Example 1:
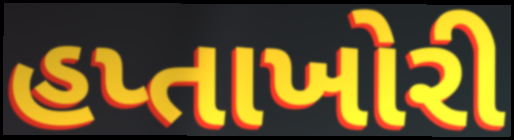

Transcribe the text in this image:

હપ્તાખોરી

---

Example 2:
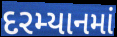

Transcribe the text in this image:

દરમ્યાનમાં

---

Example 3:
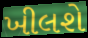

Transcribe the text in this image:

ખીલશે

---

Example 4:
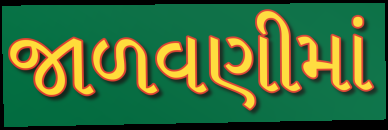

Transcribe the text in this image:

જાળવણીમાં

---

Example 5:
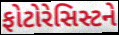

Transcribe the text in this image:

ફોટોરેસિસ્ટને